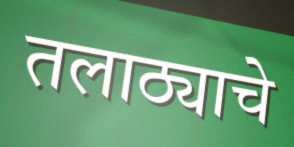
तलाठ्याचे